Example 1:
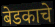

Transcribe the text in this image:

बेडकाचे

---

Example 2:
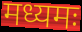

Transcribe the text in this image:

मध्यमः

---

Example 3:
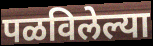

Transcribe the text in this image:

पळविलेल्या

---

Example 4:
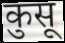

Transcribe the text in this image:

कुसू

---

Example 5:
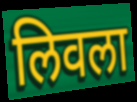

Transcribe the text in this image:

लिवला